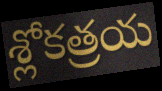
శ్లోకత్రయ